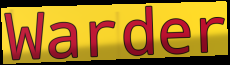
Warder